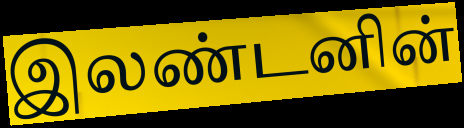
இலண்டனின்